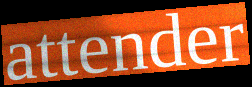
attender